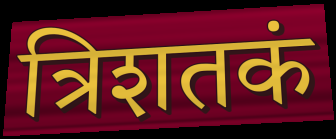
त्रिशतकं